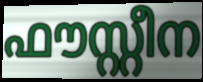
ഫൗസ്റ്റീന